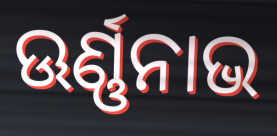
ଊର୍ଣ୍ଣନାଭ